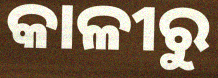
କାଳୀରୁ